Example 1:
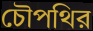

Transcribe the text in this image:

চৌপথির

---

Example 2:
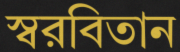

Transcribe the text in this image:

স্বরবিতান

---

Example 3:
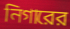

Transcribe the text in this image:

নিগারের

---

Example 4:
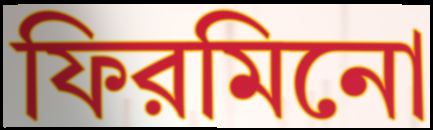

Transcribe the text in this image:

ফিরমিনো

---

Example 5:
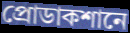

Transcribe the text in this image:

প্রোডাকশানে